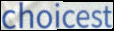
choicest